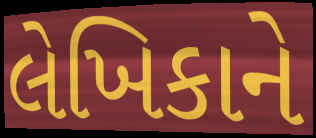
લેખિકાને